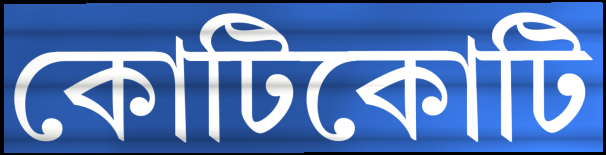
কোটিকোটি